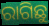
ରାଗିଛୁ